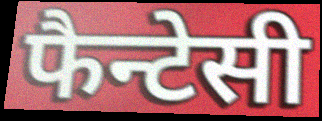
फैन्टेसी